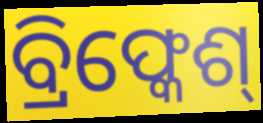
ବ୍ରିଫ୍କେଶ୍